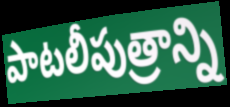
పాటలీపుత్రాన్ని